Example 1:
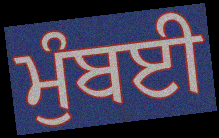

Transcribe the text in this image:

ਮੁੰਬਈ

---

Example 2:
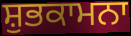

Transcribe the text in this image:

ਸ਼ੁਭਕਾਮਨਾ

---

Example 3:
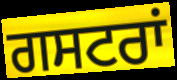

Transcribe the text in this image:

ਗਸਟਰਾਂ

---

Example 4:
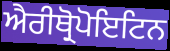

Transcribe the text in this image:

ਐਰੀਥ੍ਰੋਪੋਇਟਿਨ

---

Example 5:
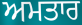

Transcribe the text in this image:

ਅਮਤਾਰ